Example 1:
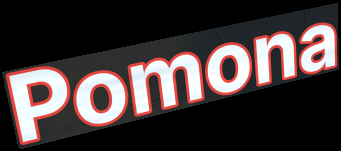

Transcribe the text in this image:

Pomona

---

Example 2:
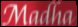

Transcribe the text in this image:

Madha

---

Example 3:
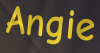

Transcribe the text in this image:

Angie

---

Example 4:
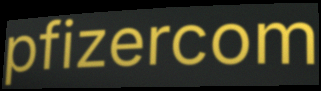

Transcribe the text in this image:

pfizercom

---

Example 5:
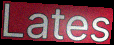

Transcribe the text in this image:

Lates